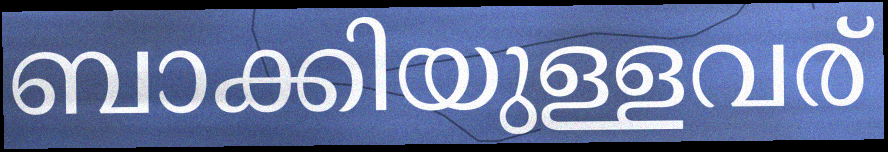
ബാക്കിയുള്ളവര്